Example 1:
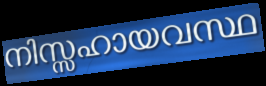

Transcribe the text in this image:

നിസ്സഹായവസ്ഥ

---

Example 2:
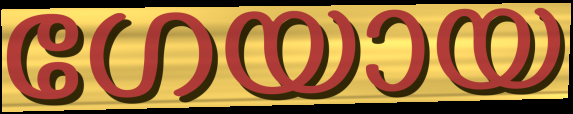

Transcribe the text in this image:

ഗേയായ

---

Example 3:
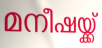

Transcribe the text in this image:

മനീഷയ്ക്ക്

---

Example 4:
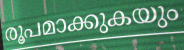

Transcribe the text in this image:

രൂപമാക്കുകയും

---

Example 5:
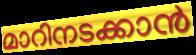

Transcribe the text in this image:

മാറിനടക്കാൻ